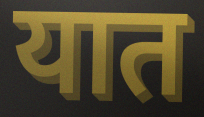
यात